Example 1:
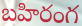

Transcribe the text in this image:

బహిరంగ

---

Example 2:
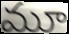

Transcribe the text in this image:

మూ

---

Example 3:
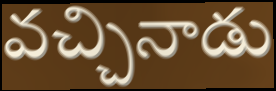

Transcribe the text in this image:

వచ్చినాడు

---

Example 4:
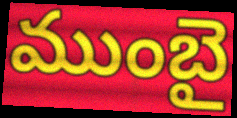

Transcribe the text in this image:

ముంబై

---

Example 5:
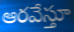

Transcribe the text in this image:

ఆరవేస్తూ